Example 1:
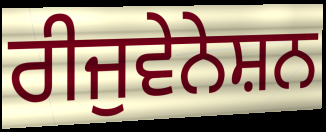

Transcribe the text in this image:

ਰੀਜੁਵੇਨੇਸ਼ਨ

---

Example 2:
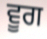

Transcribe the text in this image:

ਵੂਗ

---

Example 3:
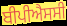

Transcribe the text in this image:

ਬੀਪੀਐਸਸੀ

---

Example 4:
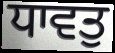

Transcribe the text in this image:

ਧਾਵਤੁ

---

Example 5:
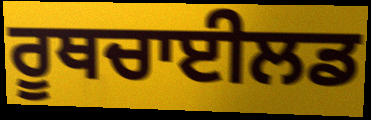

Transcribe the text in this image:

ਰੂਥਚਾਈਲਡ